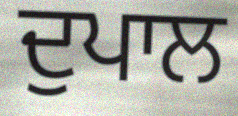
ਦੁਪਾਲ